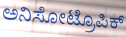
ಅನಿಸೋಟ್ರೊಪಿಕ್